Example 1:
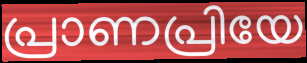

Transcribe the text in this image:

പ്രാണപ്രിയേ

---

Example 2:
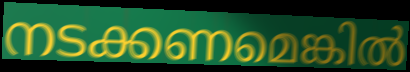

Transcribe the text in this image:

നടക്കണമെങ്കിൽ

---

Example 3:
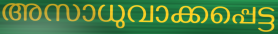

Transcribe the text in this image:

അസാധുവാക്കപ്പെട്ട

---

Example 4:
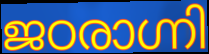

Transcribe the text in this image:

ജഠരാഗ്നി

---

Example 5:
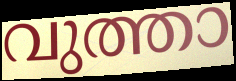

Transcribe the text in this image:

വുത്താ